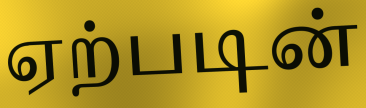
ஏற்படின்